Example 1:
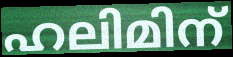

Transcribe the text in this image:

ഹലിമിന്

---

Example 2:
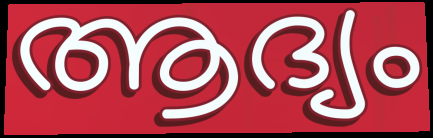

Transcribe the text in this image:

ആദ്യം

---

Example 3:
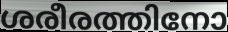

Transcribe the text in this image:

ശരീരത്തിനോ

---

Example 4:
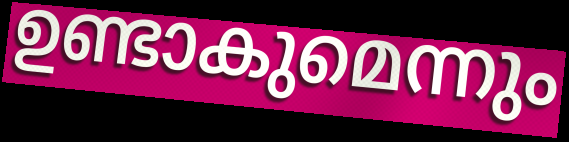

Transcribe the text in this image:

ഉണ്ടാകുമെന്നും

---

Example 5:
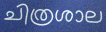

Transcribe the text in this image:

ചിത്രശാല